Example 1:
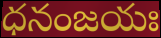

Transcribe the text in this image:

ధనంజయః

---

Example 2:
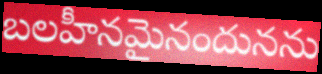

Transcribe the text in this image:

బలహీనమైనందునను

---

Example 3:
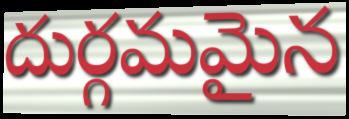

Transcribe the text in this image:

దుర్గమమైన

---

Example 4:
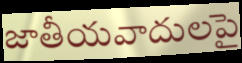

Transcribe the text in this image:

జాతీయవాదులపై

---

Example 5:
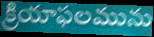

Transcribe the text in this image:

క్రియాఫలమును